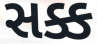
સક્ક